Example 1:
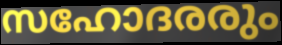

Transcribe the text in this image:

സഹോദരരും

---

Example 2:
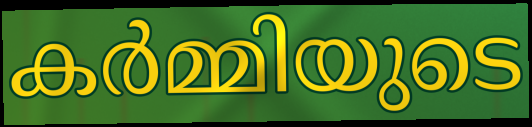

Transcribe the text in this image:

കർമ്മിയുടെ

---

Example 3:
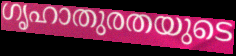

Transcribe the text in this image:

ഗൃഹാതുരതയുടെ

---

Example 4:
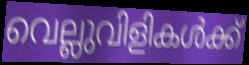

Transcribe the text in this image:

വെല്ലുവിളികൾക്ക്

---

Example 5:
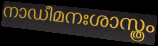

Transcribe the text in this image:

നാഡീമനഃശാസ്ത്രം